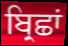
ਬ੍ਰਿਛਾਂ